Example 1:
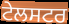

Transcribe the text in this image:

ਟੇਲਸਟਰ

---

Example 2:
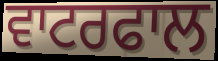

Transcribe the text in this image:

ਵਾਟਰਫਾਲ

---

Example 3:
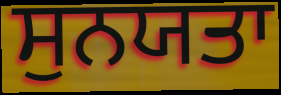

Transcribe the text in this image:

ਸੁਨਯਤਾ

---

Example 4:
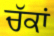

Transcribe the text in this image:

ਚੱਕਾਂ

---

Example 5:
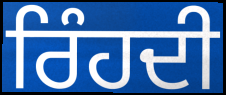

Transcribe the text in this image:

ਰਿੰਹਦੀ